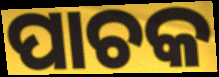
ପାଚକ